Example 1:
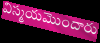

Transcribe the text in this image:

విస్మయమొందారు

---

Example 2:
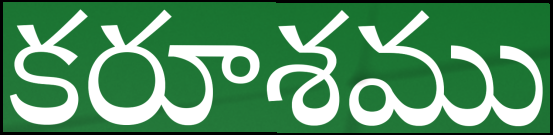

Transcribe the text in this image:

కరూశము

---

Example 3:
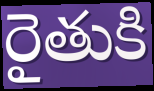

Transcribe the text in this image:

రైతుకి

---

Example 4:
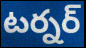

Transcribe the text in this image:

టర్నర్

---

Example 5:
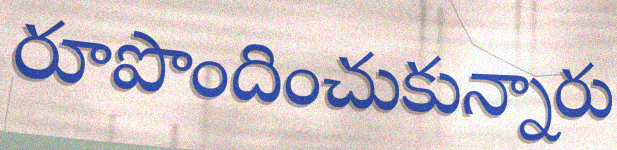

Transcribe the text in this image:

రూపొందించుకున్నారు